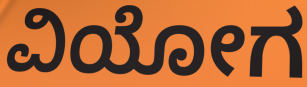
ವಿಯೋಗ